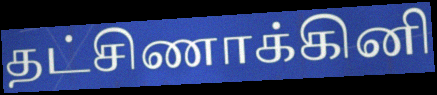
தட்சிணாக்கினி